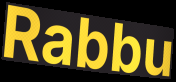
Rabbu